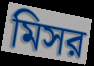
মিসর